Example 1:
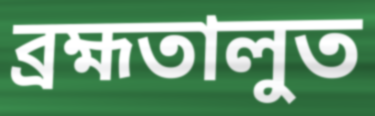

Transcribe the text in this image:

ব্ৰহ্মতালুত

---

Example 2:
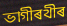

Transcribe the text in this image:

ভাগীৰথীৰ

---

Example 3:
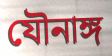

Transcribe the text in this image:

যৌনাঙ্গ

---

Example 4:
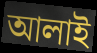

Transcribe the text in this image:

আলাই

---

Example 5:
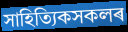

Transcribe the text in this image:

সাহিত্যিকসকলৰ